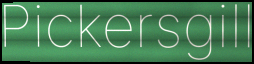
Pickersgill